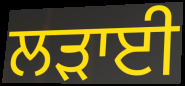
ਲੜਾਈ